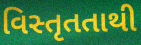
વિસ્તૃતતાથી